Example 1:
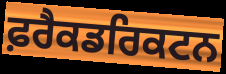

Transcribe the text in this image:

ਫ਼ਰੈਕਡਰਿਕਟਨ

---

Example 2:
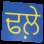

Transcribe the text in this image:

ਢਲ਼ੇ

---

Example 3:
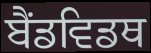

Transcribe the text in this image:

ਬੈਂਡਵਿਡਥ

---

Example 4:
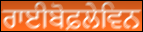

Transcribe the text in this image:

ਰਾਈਬੋਫ਼ਲੇਵਿਨ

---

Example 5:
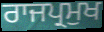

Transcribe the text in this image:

ਰਾਜਪ੍ਰਮੁਖ